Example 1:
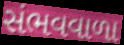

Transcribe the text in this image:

સંભવવાળા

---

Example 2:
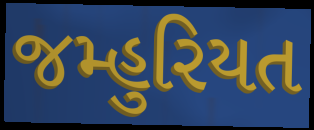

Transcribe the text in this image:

જમ્હુરિયત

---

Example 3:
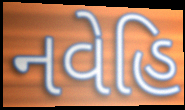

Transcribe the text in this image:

નવેહિ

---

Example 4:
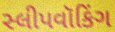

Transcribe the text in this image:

સ્લીપવૉકિંગ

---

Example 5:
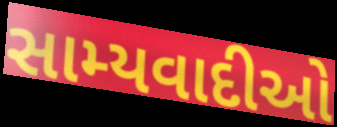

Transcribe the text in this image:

સામ્યવાદીઓ